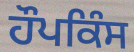
ਹੌਪਕਿੰਸ